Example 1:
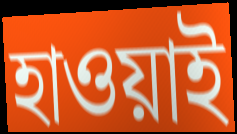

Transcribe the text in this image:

হাওয়াই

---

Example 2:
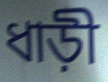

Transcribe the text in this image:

ধাড়ী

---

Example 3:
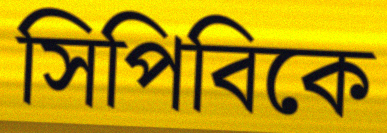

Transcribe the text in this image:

সিপিবিকে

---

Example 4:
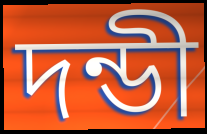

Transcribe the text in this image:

দন্ডী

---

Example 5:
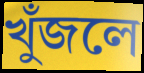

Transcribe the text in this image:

খুঁজলে